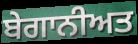
ਬੇਗਾਨੀਅਤ